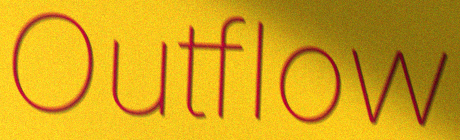
Outflow